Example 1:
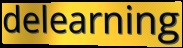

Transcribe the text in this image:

delearning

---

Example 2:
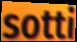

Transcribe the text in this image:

sotti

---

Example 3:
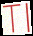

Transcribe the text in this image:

Tl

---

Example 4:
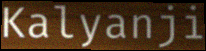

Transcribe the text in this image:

Kalyanji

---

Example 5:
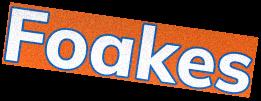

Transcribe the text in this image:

Foakes